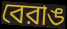
বেরাঙ